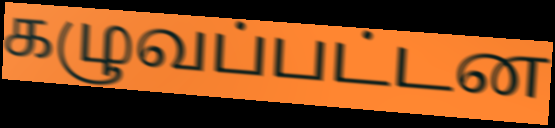
கழுவப்பட்டன